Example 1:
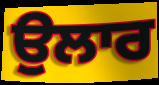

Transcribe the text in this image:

ਉਲਾਰ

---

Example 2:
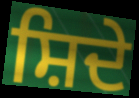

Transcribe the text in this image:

ਸ਼ਿਦੇ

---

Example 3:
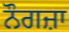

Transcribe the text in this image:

ਨੌਗਜ਼ਾ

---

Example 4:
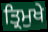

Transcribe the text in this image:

ਤ੍ਰਿਮੁਖੇ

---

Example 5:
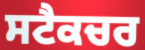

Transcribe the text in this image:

ਸਟੈਕਚਰ